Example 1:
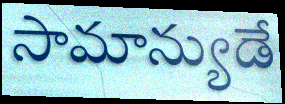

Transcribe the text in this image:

సామాన్యుడే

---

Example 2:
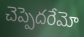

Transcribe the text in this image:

చెప్పెదరేమో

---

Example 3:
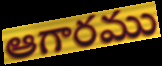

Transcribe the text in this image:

ఆగారము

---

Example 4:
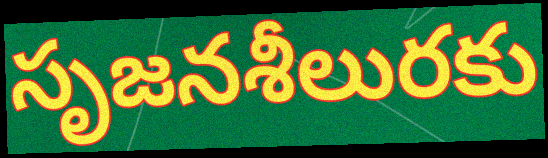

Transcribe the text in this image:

సృజనశీలురకు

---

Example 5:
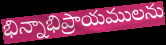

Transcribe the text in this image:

భిన్నాభిప్రాయములను